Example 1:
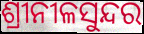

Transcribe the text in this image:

ଶ୍ରୀନୀଳସୁନ୍ଦର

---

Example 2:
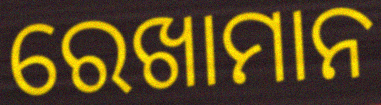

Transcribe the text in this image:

ରେଖାମାନ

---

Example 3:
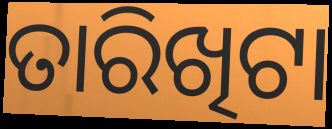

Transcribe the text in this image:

ତାରିଖିଟା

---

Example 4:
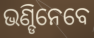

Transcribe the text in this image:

ଭଣ୍ଡିନେବେ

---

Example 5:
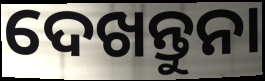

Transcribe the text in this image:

ଦେଖନ୍ତୁନା